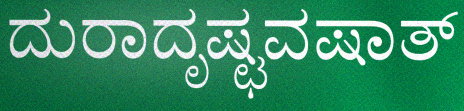
ದುರಾದೃಷ್ಟವಷಾತ್